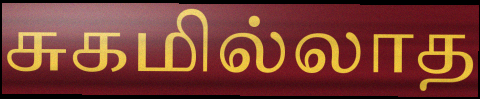
சுகமில்லாத